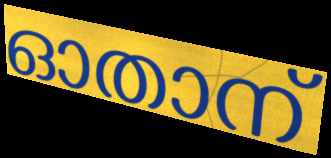
ഓതാന്